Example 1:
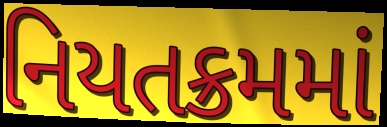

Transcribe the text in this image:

નિયતક્રમમાં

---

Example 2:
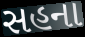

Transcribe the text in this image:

સહના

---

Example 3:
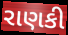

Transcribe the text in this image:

રાણકી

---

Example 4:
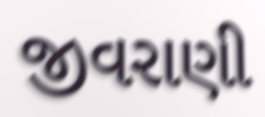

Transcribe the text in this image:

જીવરાણી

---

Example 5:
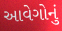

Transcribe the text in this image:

આવેગોનું